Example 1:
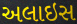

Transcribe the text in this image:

અલાઇસ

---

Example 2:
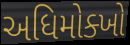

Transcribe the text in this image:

અધિમોક્ખો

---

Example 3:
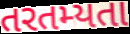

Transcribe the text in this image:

તરતમ્યતા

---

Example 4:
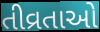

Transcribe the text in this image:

તીવ્રતાઓ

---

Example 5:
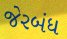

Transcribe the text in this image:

જેરબંધ